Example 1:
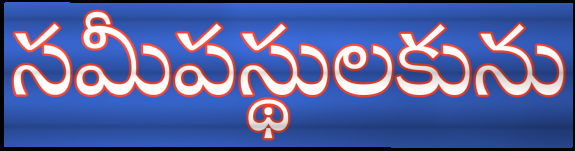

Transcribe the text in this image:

సమీపస్థులకును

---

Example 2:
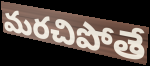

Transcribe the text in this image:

మరచిపోతే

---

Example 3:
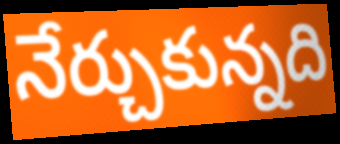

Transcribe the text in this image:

నేర్చుకున్నది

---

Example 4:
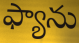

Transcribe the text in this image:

ఫ్యాను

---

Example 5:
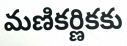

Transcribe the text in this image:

మణికర్ణికకు